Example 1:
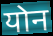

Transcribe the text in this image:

योन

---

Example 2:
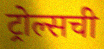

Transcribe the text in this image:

ट्रोल्सची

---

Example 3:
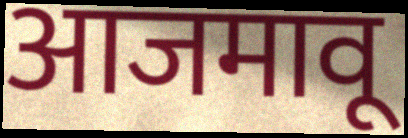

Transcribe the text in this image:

आजमावू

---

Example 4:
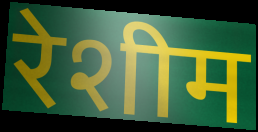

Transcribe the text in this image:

रेशीम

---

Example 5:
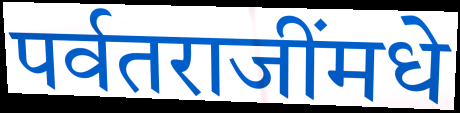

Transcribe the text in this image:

पर्वतराजींमधे